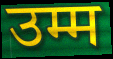
उम्म